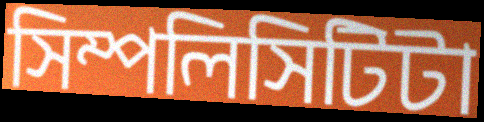
সিম্পলিসিটিটা